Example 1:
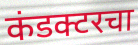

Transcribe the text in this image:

कंडक्टरचा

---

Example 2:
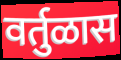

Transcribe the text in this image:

वर्तुळास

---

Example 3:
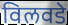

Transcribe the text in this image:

विलवडे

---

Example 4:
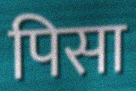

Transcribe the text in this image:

पिसा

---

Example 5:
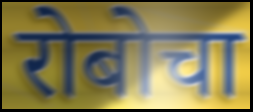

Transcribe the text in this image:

रोबोचा